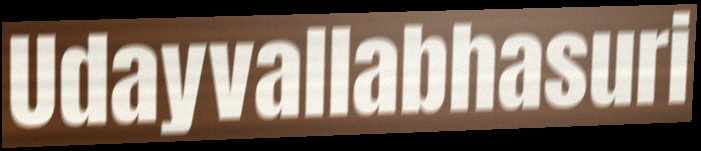
Udayvallabhasuri